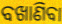
ବଖାଣିବା